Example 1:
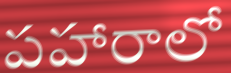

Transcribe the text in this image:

పహారాలో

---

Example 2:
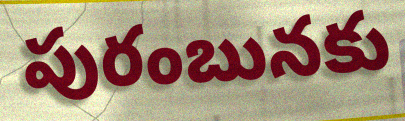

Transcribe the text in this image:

పురంబునకు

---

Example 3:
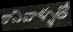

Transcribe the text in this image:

కానివాళ్ళతో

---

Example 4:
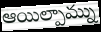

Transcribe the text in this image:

ఆయిల్పామ్ను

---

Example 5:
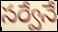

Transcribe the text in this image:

సర్వేనే